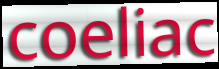
coeliac